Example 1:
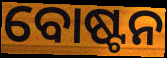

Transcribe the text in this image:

ବୋଷ୍ଟନ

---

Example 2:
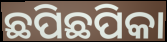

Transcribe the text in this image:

ଛପିଛପିକା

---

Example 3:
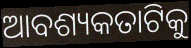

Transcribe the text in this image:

ଆବଶ୍ୟକତାଟିକୁ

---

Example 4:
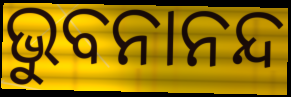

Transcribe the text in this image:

ଭୁବନାନନ୍ଦ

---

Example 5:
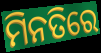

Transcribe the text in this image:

ମିନତିରେ